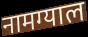
नामग्याल